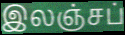
இலஞ்சப்